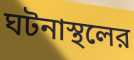
ঘটনাস্থলের